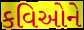
કવિઓને